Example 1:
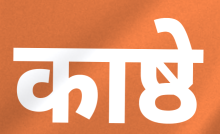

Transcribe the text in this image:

काष्ठे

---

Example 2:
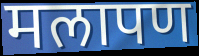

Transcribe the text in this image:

मलापण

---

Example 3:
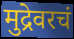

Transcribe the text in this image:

मुद्रेवरचं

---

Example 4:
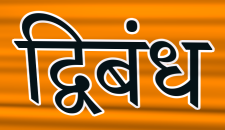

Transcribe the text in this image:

द्विबंध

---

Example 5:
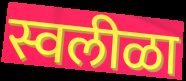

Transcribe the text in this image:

स्वलीळा